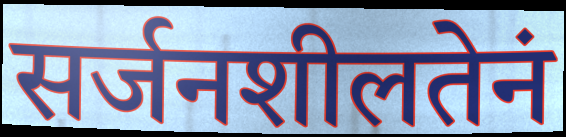
सर्जनशीलतेनं